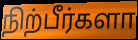
நிற்பீர்களா